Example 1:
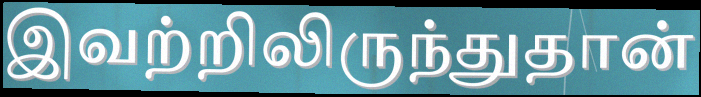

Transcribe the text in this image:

இவற்றிலிருந்துதான்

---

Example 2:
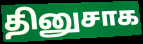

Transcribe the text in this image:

தினுசாக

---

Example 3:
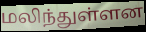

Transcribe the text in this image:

மலிந்துள்ளன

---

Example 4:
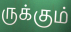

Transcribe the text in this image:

ருக்கும்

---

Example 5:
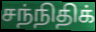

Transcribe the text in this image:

சந்நிதிக்